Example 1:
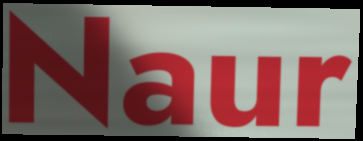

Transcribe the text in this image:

Naur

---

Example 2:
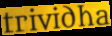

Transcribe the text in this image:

trividha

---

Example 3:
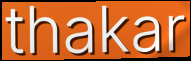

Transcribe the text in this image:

thakar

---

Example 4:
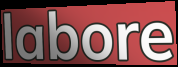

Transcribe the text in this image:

labore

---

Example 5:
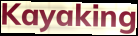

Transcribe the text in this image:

Kayaking